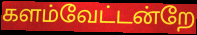
களம்வேட்டன்றே